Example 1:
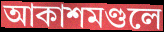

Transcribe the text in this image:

আকাশমণ্ডলে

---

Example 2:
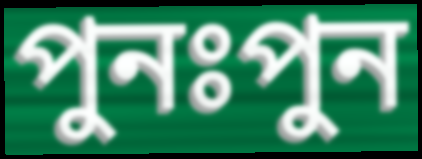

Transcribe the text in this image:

পুনঃপুন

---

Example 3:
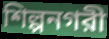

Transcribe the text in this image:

শিল্পনগরী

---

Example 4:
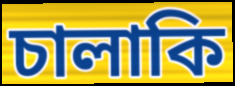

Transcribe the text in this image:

চালাকি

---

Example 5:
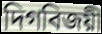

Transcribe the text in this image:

দিগবিজয়ী